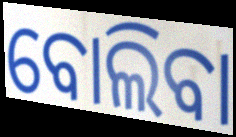
ବୋଲିବା